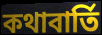
কথাবার্তি